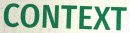
CONTEXT